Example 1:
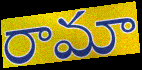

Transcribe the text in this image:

రామా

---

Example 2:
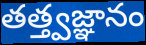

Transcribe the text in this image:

తత్త్వజ్ఞానం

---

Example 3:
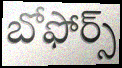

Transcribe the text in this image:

బోఫోర్స్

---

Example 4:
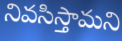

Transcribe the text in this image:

నివసిస్తామని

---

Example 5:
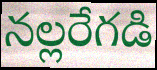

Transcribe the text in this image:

నల్లరేగడి